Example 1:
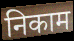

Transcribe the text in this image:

निकाम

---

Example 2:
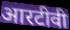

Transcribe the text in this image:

आरटीवी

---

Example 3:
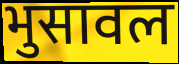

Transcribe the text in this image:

भुसावल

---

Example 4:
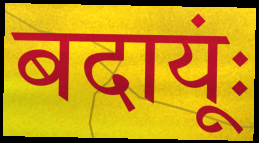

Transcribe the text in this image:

बदायूंः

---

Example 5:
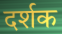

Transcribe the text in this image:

दर्शक